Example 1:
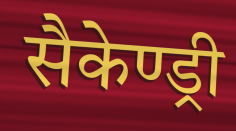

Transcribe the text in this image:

सैकेण्ड्री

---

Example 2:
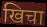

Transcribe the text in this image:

खिचा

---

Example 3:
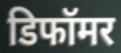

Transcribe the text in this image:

डिफॉमर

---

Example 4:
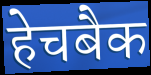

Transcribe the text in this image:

हेचबैक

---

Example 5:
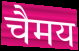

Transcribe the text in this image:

चैमय